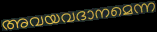
അവയവദാനമെന്ന